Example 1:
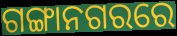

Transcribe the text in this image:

ଗଙ୍ଗାନଗରରେ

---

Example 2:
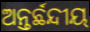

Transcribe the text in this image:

ଅନ୍ତର୍ଛନ୍ଦୀୟ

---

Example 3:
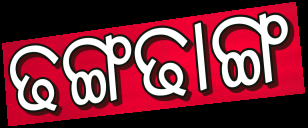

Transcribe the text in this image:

ଢଙ୍ଗଢାଙ୍ଗ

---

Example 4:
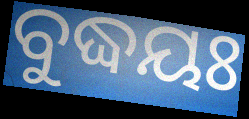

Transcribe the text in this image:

ବୁଦ୍ଧୟଃ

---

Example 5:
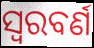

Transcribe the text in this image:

ସ୍ଵରବର୍ଣ